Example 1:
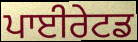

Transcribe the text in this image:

ਪਾਈਰੇਟਡ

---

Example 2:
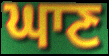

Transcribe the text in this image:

ਘਾਣ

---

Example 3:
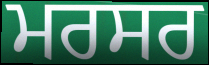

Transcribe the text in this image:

ਮਰਸਰ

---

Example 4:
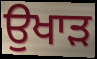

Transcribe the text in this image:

ਉਖਾੜ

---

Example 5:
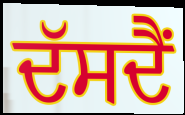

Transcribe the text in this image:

ਦੱਸਦੈਂ